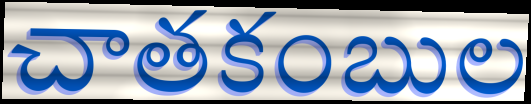
చాతకంబుల